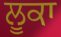
ਲੂਕਾ